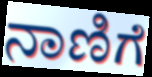
ನಾಣಿಗೆ